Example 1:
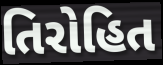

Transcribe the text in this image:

તિરોહિત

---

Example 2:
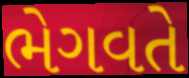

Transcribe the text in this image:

ભેગવતે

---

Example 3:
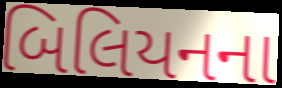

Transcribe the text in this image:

બિલિયનના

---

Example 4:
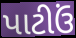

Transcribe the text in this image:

પાટીઉં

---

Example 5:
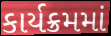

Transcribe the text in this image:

કાર્યક્રમમાં